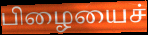
பிழையைச்